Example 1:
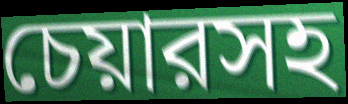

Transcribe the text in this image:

চেয়ারসহ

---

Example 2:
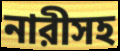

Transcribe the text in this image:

নারীসহ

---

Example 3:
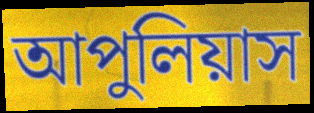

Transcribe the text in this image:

আপুলিয়াস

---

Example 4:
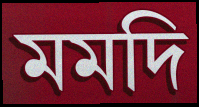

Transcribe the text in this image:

মমদি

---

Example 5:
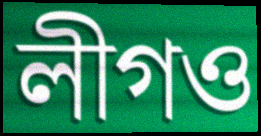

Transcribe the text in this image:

লীগও